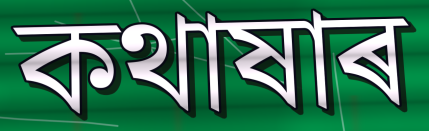
কথাষাৰ